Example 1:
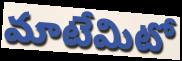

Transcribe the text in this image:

మాటేమిటో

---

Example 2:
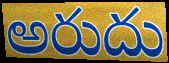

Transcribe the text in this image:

అరుదు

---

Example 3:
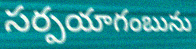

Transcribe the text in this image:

సర్పయాగంబును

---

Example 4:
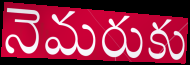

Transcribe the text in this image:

నెమరుకు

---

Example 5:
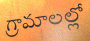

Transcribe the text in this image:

గ్రామాలల్లో